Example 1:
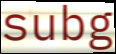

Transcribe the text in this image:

subg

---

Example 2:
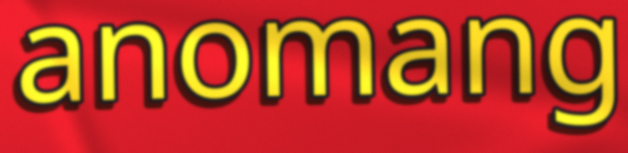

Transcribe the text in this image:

anomang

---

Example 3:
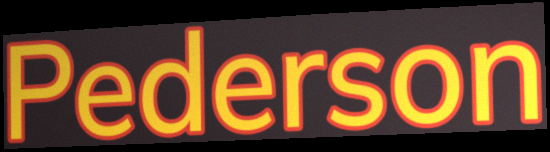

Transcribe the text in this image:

Pederson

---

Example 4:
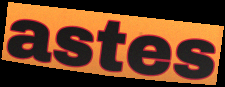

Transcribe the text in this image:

astes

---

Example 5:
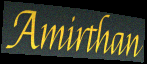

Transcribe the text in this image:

Amirthan